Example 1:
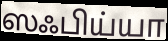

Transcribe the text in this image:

ஸஃபிய்யா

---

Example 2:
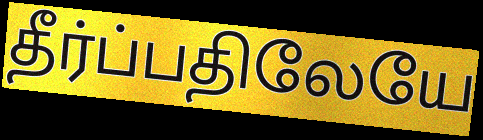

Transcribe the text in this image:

தீர்ப்பதிலேயே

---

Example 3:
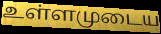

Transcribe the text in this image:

உள்ளமுடைய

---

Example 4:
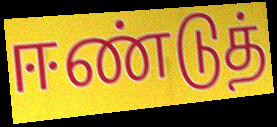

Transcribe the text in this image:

ஈண்டுத்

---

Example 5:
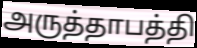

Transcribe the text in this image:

அருத்தாபத்தி